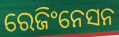
ରେଜିଂନେସନ